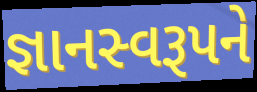
જ્ઞાનસ્વરૂપને